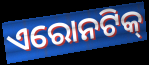
ଏରୋନଟିକ୍